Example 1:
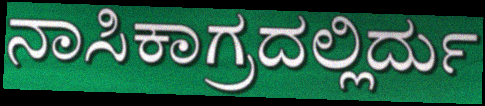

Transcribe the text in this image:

ನಾಸಿಕಾಗ್ರದಲ್ಲಿರ್ದು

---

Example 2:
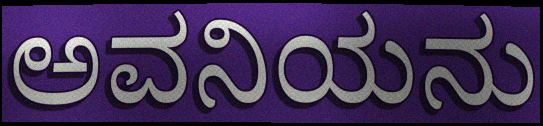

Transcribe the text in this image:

ಅವನಿಯನು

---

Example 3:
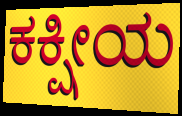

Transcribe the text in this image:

ಕಕ್ಷೀಯ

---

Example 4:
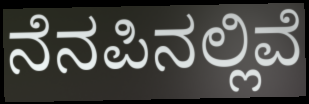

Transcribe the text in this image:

ನೆನಪಿನಲ್ಲಿವೆ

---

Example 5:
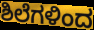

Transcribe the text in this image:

ಶಿಲೆಗಳಿಂದ